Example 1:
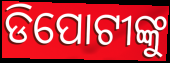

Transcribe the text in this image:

ଡିପୋଟୀଙ୍କୁ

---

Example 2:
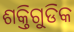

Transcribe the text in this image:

ଶକ୍ତିଗୁଡିକ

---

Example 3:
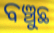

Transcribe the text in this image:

ବଞ୍ଚୁଛ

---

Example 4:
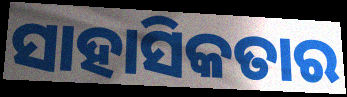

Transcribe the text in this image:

ସାହାସିକତାର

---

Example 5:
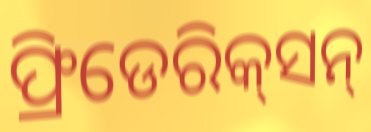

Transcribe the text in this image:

ଫ୍ରିଡେରିକ୍‌ସନ୍